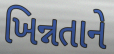
ખિન્નતાને